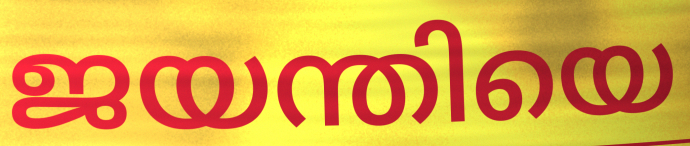
ജയന്തിയെ